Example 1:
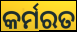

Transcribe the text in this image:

କର୍ମରତ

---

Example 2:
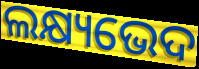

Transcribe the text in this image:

ଲକ୍ଷ୍ୟଭେଦ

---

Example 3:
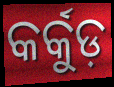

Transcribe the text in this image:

କର୍କୁଡ଼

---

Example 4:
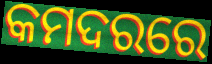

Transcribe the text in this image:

କମଦରରେ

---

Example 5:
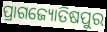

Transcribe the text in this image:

ପ୍ରାଗଜ୍ୟୋତିଷପୁର